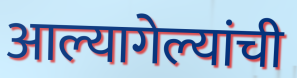
आल्यागेल्यांची